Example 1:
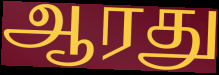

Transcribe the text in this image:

ஆரது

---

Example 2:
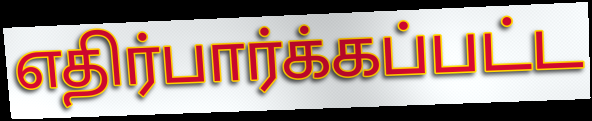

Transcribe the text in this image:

எதிர்பார்க்கப்பட்ட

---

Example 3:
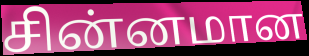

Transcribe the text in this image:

சின்னமான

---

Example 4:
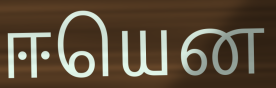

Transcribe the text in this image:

ஈயென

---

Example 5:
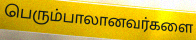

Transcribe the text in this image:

பெரும்பாலானவர்களை